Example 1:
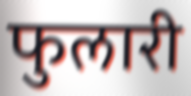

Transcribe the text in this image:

फुलारी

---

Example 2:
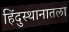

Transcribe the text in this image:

हिंदुस्थानातला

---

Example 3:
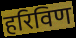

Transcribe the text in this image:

हरिविण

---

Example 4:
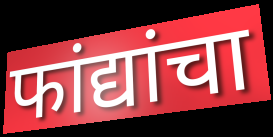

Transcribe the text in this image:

फांद्यांचा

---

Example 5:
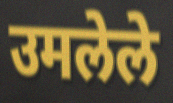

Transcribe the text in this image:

उमलेले